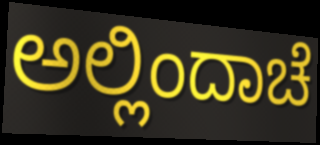
ಅಲ್ಲಿಂದಾಚೆ